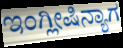
ಇಂಗ್ಲೀಷಿನ್ಯಾಗ